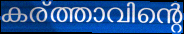
കര്ത്താവിന്റെ